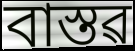
বাস্তৱ